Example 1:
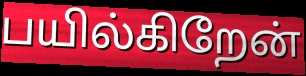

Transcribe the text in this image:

பயில்கிறேன்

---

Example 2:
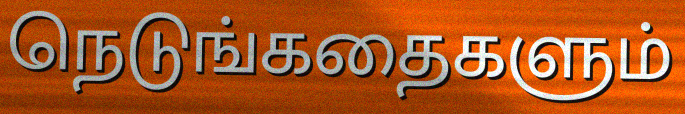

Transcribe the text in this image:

நெடுங்கதைகளும்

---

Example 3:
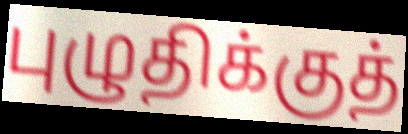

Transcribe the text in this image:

புழுதிக்குத்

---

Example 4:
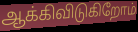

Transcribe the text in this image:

ஆக்கிவிடுகிறோம்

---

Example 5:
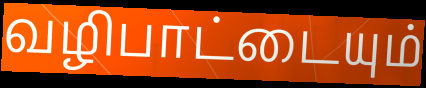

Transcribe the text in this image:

வழிபாட்டையும்